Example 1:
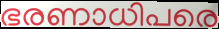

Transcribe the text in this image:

ഭരണാധിപരെ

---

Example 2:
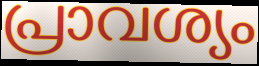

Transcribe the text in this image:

പ്രാവശ്യം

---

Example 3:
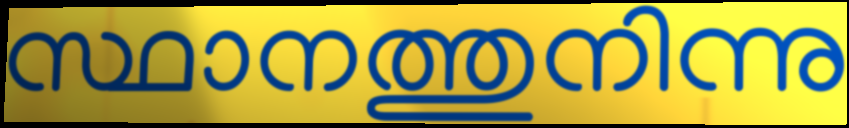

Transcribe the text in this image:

സ്ഥാനത്തുനിന്നു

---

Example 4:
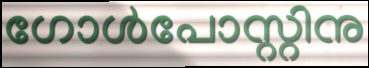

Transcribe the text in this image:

ഗോൾപോസ്റ്റിനു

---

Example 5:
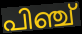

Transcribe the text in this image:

പിഞ്ച്